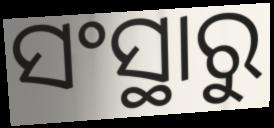
ସଂସ୍ଥାରୁ